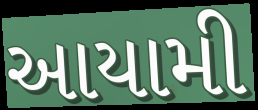
આયામી